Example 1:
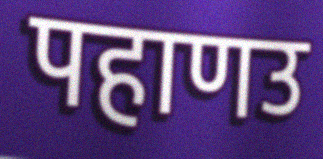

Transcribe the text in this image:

पहाणउ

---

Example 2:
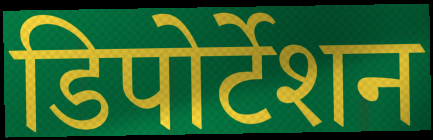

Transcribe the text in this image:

डिपोर्टेशन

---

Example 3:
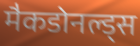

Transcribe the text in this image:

मैकडोनल्ड्स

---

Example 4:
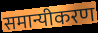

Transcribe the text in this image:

समान्यीकरण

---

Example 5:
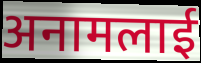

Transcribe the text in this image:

अनामलाई